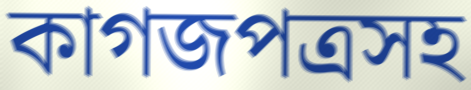
কাগজপত্রসহ